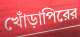
খোঁড়াপিরের